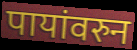
पायांवरुन